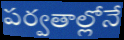
పర్వతాల్లోనే